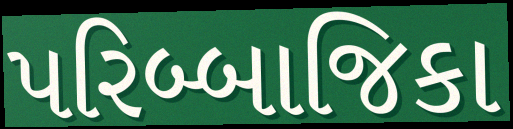
પરિબ્બાજિકા